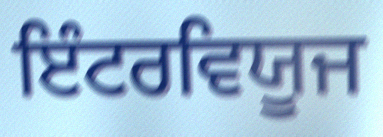
ਇੰਟਰਵਿਯੂਜ